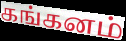
கங்கனம்